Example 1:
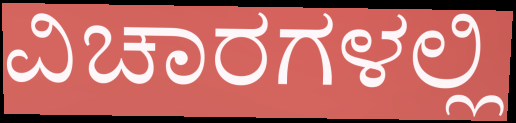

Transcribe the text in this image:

ವಿಚಾರಗಳಲ್ಲಿ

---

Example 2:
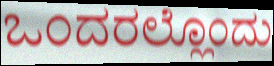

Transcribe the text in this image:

ಒಂದರಲ್ಲೊಂದು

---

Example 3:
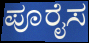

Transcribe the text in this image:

ಪೂರೈಸ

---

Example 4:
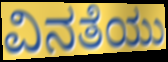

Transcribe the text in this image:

ವಿನತೆಯು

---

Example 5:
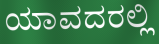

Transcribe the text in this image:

ಯಾವದರಲ್ಲಿ